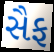
સૈફ